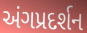
અંગપ્રદર્શન